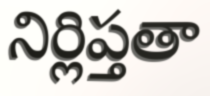
నిర్లిప్తతా